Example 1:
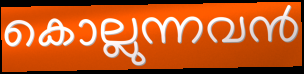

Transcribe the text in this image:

കൊല്ലുന്നവൻ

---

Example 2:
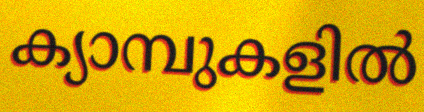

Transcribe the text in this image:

ക്യാമ്പുകളിൽ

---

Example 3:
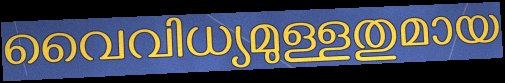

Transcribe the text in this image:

വൈവിധ്യമുള്ളതുമായ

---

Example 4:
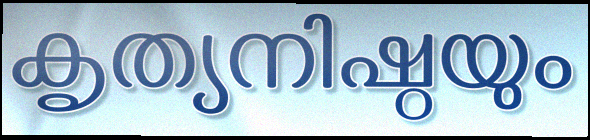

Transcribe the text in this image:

കൃത്യനിഷ്ഠയും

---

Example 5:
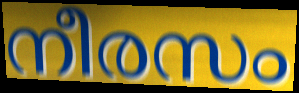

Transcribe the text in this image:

നീരസം